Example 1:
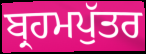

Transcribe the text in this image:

ਬ੍ਰਹਮਪੁੱਤਰ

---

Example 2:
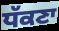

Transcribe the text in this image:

ਧੱਕਣਾ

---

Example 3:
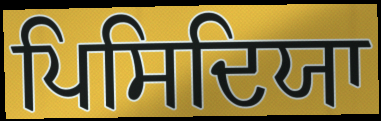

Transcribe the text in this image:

ਪਿਸਿਦਿਯਾ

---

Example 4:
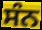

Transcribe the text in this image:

ਸੰਨ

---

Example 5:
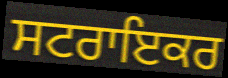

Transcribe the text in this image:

ਸਟਰਾਇਕਰ